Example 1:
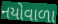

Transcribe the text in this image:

નયોવાળા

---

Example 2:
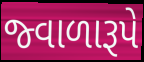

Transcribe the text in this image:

જ્વાળારૂપે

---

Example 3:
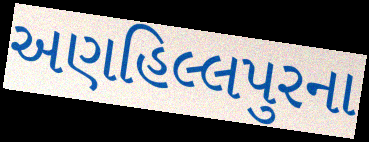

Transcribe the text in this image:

અણહિલ્લપુરના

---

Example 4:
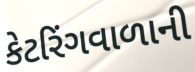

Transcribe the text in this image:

કેટરિંગવાળાની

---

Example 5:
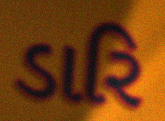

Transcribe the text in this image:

ડારિ